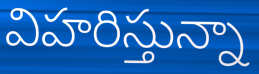
విహరిస్తున్నా